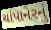
ચાંપાનેરનું